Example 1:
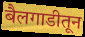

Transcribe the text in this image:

बैलगाडीतून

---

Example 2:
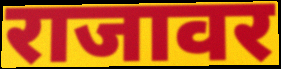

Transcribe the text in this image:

राजावर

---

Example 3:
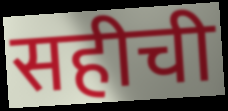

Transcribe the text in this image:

सहीची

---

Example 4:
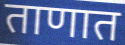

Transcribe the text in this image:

ताणात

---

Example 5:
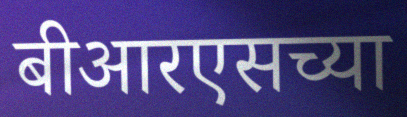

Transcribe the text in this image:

बीआरएसच्या